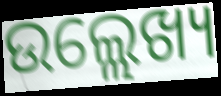
ଉଲ୍ଲେଖ୍ୟ